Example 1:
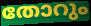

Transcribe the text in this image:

തോറും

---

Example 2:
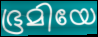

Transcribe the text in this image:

ഭൂമിയേ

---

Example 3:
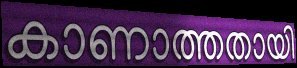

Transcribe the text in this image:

കാണാത്തതായി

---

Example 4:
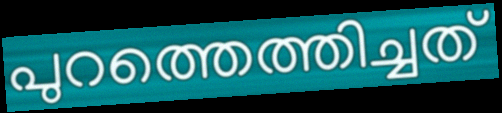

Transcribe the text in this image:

പുറത്തെത്തിച്ചത്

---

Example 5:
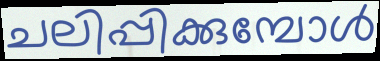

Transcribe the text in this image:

ചലിപ്പിക്കുമ്പോൾ